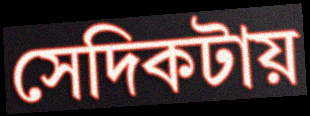
সেদিকটায়